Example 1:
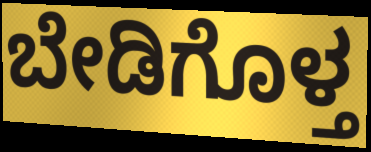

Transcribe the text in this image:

ಬೇಡಿಗೊಳ್ತ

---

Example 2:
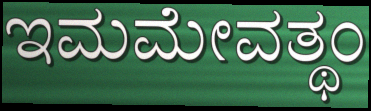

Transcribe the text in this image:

ಇಮಮೇವತ್ಥಂ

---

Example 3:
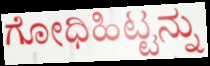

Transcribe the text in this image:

ಗೋಧಿಹಿಟ್ಟನ್ನು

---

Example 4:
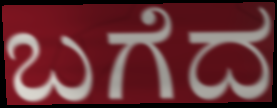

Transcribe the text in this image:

ಬಗೆದ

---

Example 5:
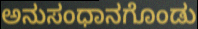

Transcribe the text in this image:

ಅನುಸಂಧಾನಗೊಂಡು